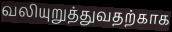
வலியுறுத்துவதற்காக